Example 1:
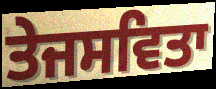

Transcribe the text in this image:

ਤੇਜਸਵਿਤਾ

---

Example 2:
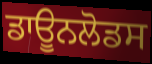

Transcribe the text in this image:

ਡਾਊਨਲੋਡਸ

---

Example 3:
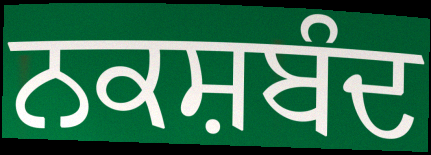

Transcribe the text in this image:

ਨਕਸ਼ਬੰਦ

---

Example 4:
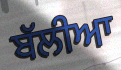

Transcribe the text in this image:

ਬੱਲੀਆ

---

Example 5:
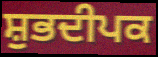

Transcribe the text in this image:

ਸ਼ੁਭਦੀਪਕ